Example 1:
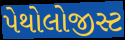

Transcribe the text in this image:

પેથોલોજીસ્ટ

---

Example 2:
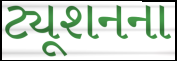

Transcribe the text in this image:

ટ્યૂશનના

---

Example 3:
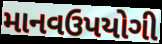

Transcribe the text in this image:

માનવઉપયોગી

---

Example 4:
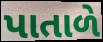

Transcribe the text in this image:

પાતાળે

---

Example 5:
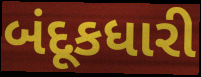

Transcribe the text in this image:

બંદૂકધારી